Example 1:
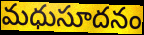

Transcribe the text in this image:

మధుసూదనం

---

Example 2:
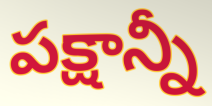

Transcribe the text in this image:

పక్షాన్నీ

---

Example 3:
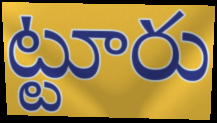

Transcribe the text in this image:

ట్టూరు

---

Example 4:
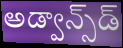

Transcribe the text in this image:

అడ్వాన్స్‌డ్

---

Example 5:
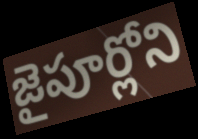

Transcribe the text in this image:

జైపూర్లోని